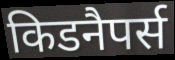
किडनैपर्स